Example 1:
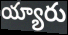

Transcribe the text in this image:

య్యారు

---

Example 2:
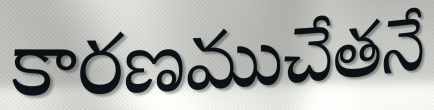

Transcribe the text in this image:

కారణముచేతనే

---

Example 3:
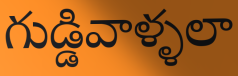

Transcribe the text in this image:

గుడ్డివాళ్ళలా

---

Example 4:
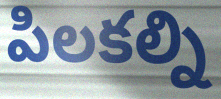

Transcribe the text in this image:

పిలకల్ని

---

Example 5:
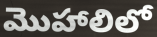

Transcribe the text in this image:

మొహాలిలో